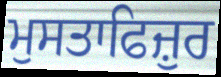
ਮੁਸਤਾਫਿਜ਼ੁਰ